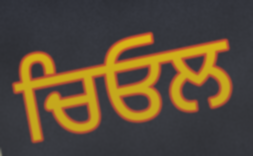
ਚਿਓਲ